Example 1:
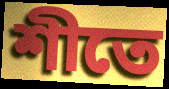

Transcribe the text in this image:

শীতে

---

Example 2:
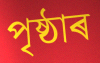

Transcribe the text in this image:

পৃষ্ঠাৰ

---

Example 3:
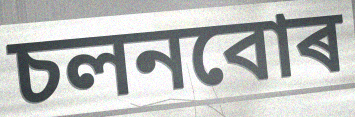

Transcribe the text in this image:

চলনবোৰ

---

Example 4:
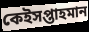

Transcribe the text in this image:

কেইসপ্তাহমান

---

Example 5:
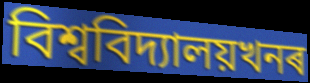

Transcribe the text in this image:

বিশ্ববিদ্যালয়খনৰ